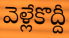
వెళ్లేకొద్దీ